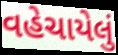
વહેચાયેલું